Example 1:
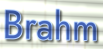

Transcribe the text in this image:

Brahm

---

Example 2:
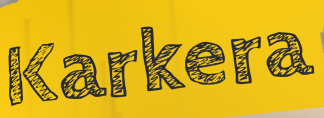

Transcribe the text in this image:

Karkera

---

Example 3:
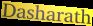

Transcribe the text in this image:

Dasharath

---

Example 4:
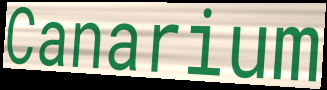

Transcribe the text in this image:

Canarium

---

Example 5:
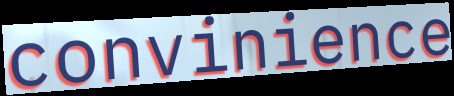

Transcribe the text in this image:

convinience